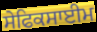
ਸੇਫਿਕਸਾਈਮ